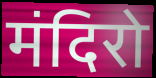
मंदिरो